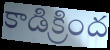
కాడిక్రింద